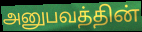
அனுபவத்தின்